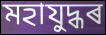
মহাযুদ্ধৰ